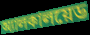
অ্যালকালয়েড